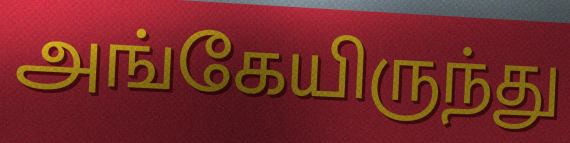
அங்கேயிருந்து